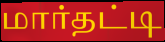
மார்தட்டி